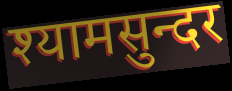
श्यामसुन्दर